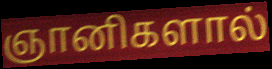
ஞானிகளால்